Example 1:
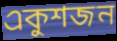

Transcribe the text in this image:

একুশজন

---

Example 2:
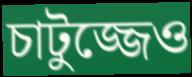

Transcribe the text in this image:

চাটুজ্জেও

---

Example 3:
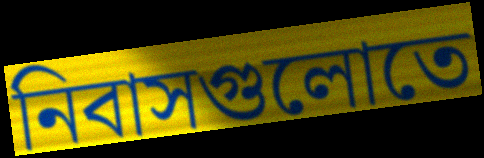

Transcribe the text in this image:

নিবাসগুলোতে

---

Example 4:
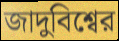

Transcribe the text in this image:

জাদুবিশ্বের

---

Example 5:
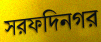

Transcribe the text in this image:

সরফদিনগর